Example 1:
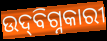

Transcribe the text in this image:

ଉଦ୍‌ବିଗ୍ନକାରୀ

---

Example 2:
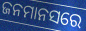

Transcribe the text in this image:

ଜନମାନସରେ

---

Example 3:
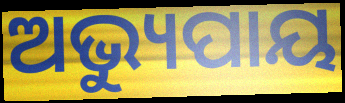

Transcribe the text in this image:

ଅଭ୍ୟୁପାୟ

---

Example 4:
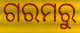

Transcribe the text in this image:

ଗରମରୁ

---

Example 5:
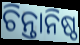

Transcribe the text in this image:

ଚିନ୍ତାନିଷ୍ଠ